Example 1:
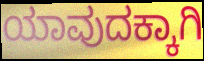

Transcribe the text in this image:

ಯಾವುದಕ್ಕಾಗಿ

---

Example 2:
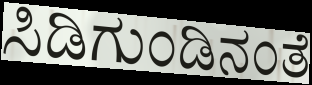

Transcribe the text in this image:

ಸಿಡಿಗುಂಡಿನಂತೆ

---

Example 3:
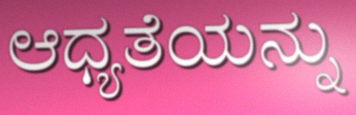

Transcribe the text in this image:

ಆಧ್ಯತೆಯನ್ನು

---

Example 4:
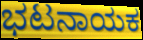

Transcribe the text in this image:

ಭಟನಾಯಕ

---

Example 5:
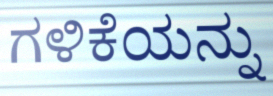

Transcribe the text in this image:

ಗಳಿಕೆಯನ್ನು